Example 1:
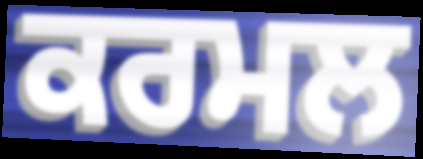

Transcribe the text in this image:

ਕਰਮਲ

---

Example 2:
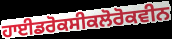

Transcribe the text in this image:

ਹਾਈਡਰੋਕਸੀਕਲੋਰੋਕਵੀਨ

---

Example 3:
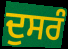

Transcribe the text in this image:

ਦੁਸਰੰ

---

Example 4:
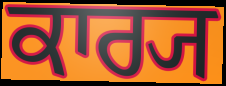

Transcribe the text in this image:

ਕਾਰ੍ਯ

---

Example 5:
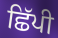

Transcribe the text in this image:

ਛਿੱਪੀ